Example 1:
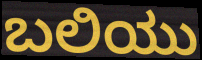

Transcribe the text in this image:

ಬಲಿಯು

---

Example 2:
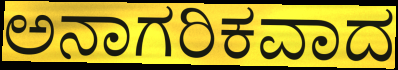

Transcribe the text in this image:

ಅನಾಗರಿಕವಾದ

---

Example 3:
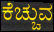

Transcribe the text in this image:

ಕೆಚ್ಚುವ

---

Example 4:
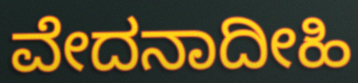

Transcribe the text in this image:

ವೇದನಾದೀಹಿ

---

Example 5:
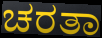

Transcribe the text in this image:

ಚರತಾ